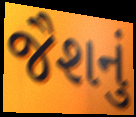
જૈશનું